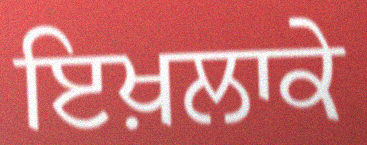
ਇਖ਼ਲਾਕੇ